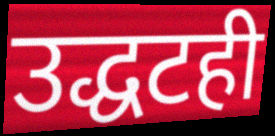
उद्धटही